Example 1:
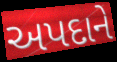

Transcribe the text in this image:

અપદાને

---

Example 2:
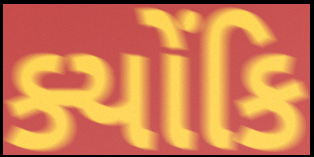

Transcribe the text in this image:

ક્યોંકિ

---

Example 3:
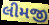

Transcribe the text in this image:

લીમજી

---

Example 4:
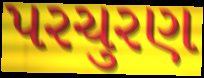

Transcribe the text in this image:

પરચુરણ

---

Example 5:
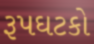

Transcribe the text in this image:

રૂપઘટકો